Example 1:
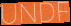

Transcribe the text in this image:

UNDF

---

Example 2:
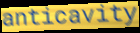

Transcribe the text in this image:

anticavity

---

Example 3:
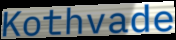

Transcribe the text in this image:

Kothvade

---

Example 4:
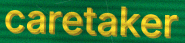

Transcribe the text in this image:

caretaker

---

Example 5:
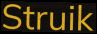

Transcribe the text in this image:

Struik